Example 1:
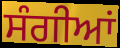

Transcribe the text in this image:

ਸੰਗੀਆਂ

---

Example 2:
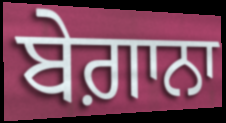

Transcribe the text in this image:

ਬੇਗ਼ਾਨਾ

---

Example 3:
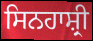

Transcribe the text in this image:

ਸਿਨਹਾਸ਼੍ਰੀ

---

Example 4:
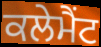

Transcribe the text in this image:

ਕਲੇਮੈਂਟ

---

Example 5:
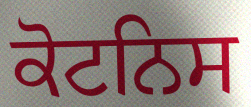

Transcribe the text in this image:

ਕੋਟਨਿਸ